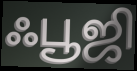
ஃபூஜி